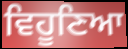
ਵਿਹੂਣਿਆ